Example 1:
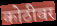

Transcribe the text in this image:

कोठीवर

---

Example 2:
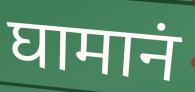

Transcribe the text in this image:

घामानं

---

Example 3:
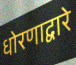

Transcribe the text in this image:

धोरणाद्वारे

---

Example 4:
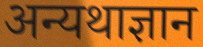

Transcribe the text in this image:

अन्यथाज्ञान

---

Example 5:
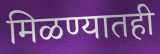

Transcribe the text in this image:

मिळण्यातही